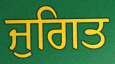
ਜੁਗਿਤ